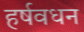
हर्षवधन